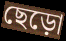
ছেড়ো